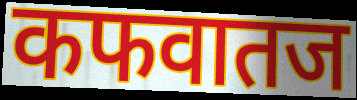
कफवातज